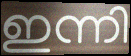
ഇന്നി